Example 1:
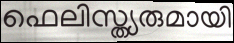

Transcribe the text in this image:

ഫെലിസ്ത്യരുമായി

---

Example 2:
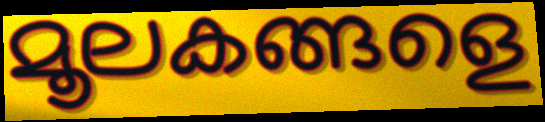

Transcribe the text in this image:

മൂലകങ്ങളെ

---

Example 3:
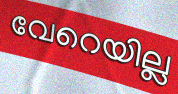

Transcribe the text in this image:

വേറെയില്ല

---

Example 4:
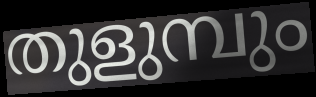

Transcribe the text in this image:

തുളുമ്പും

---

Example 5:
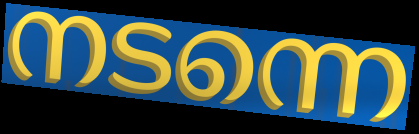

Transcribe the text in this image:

നടന്നെ